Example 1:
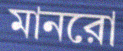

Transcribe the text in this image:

মানরো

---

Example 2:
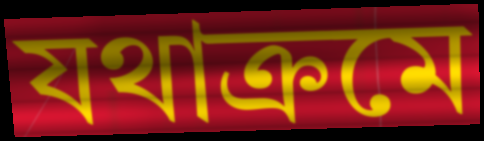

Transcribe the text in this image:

যথাক্রমে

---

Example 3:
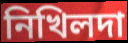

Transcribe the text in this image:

নিখিলদা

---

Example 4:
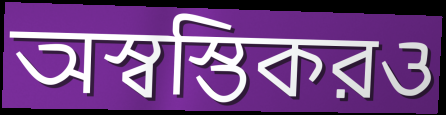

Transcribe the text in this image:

অস্বস্তিকরও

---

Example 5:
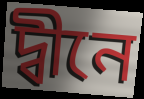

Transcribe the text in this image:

দ্বীনে